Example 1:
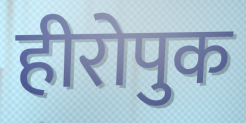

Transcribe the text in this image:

हीरोपुक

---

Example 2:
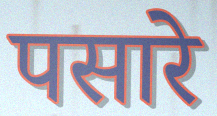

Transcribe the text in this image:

पसारे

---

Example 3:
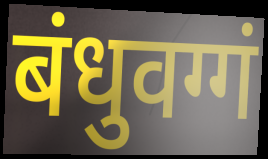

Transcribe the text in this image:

बंधुवग्गं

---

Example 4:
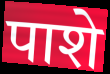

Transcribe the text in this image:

पाशे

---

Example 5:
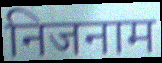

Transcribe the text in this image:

निजनाम